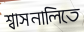
শ্বাসনালিতে